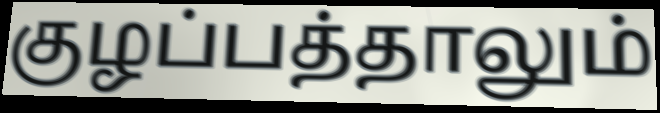
குழப்பத்தாலும்